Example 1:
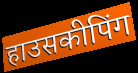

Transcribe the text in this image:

हाउसकीपिंग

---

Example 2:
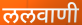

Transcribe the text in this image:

ललवाणी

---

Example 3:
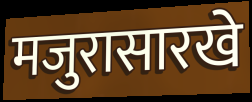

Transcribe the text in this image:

मजुरासारखे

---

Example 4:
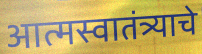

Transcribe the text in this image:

आत्मस्वातंत्र्याचे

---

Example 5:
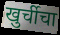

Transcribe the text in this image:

खुर्चीचा